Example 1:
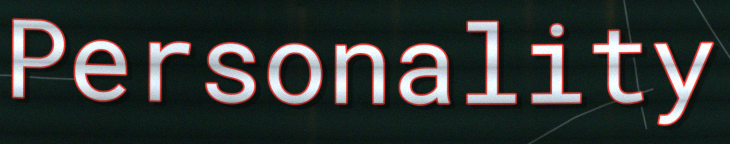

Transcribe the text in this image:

Personality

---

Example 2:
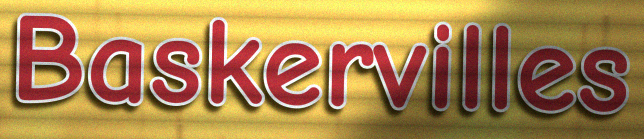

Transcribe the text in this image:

Baskervilles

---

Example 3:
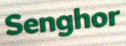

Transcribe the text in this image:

Senghor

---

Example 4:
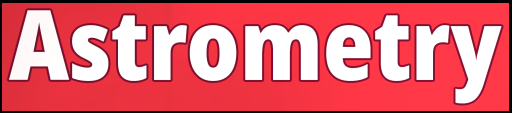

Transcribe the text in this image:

Astrometry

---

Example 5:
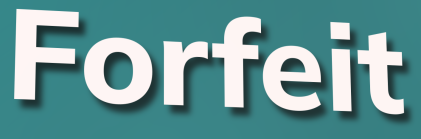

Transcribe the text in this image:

Forfeit